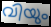
വിയും